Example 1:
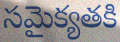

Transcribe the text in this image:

సమైక్యతకి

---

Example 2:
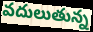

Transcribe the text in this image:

వదులుతున్న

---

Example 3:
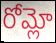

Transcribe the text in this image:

రోమ్లో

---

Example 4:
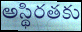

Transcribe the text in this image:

అస్థిరతకు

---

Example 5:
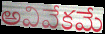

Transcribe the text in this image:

అవివేకమే